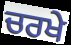
ਚਰਖੇ